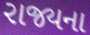
રાજ્યના